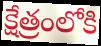
క్షేత్రంలోకి